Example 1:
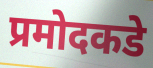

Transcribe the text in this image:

प्रमोदकडे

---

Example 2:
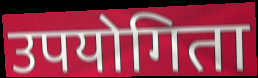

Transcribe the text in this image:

उपयोगिता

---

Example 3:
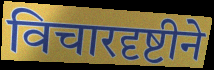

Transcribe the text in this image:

विचारदृष्टीने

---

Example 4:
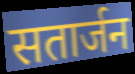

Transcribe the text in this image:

सतार्जन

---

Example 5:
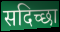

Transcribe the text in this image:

सदिच्छा